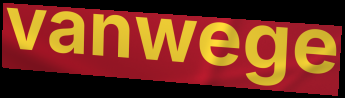
vanwege